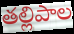
తల్లిపాల